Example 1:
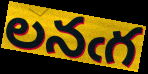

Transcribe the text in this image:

లనఁగ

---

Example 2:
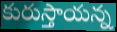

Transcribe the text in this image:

కురుస్తాయన్న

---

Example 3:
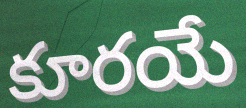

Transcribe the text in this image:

కూరయే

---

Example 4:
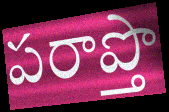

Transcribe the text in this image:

పరాప్తొ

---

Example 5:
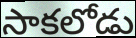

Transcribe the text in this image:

సాకలోడు